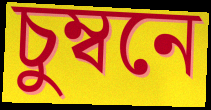
চুম্বনে